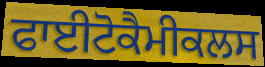
ਫਾਈਟੋਕੈਮੀਕਲਸ